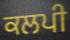
ਕਲਪੀ